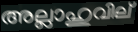
അല്ലാഹുവില്